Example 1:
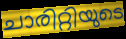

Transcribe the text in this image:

ചാരിറ്റിയുടെ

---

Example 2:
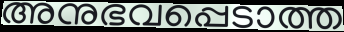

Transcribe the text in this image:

അനുഭവപ്പെടാത്ത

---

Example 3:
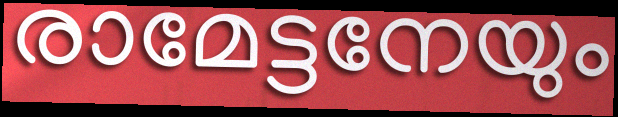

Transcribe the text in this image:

രാമേട്ടനേയും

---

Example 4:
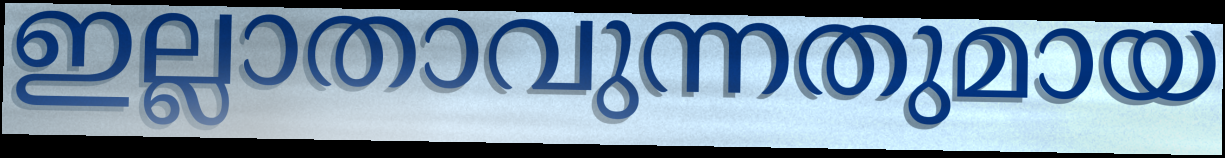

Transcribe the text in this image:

ഇല്ലാതാവുന്നതുമായ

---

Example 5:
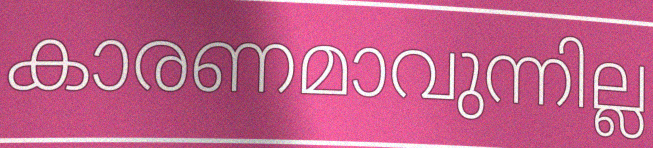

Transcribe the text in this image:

കാരണമാവുന്നില്ല